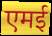
एमई